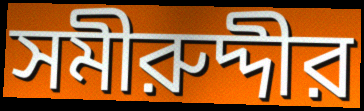
সমীরুদ্দীর